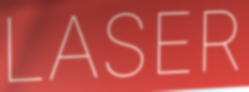
LASER